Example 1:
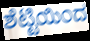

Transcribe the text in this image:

ಶೆಟ್ಟಿಯಿಂದ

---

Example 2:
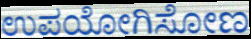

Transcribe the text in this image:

ಉಪಯೋಗಿಸೋಣ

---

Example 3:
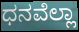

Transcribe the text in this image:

ಧನವೆಲ್ಲಾ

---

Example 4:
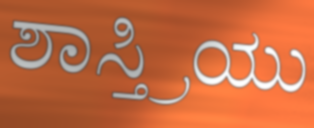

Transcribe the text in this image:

ಶಾಸ್ತ್ರಿಯು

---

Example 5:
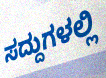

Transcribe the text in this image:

ಸದ್ದುಗಳಲ್ಲಿ